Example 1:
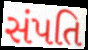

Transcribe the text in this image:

સંપતિ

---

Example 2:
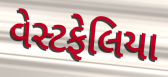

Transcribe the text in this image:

વેસ્ટફેલિયા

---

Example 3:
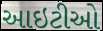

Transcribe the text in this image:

આઇટીઓ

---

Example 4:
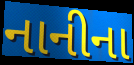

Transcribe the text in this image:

નાનીના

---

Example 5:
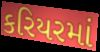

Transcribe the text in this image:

કરિયરમાં